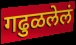
गढुळलेलं